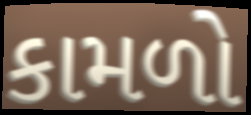
કામળો